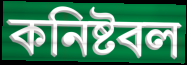
কনিষ্টবল